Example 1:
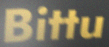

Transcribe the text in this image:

Bittu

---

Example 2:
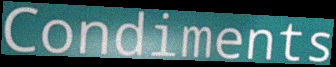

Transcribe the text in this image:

Condiments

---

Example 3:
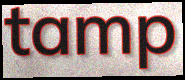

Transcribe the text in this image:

tamp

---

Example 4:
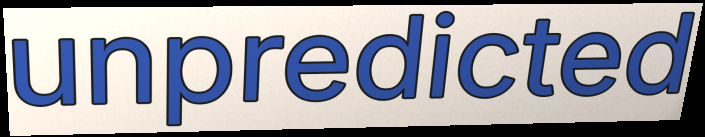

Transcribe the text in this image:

unpredicted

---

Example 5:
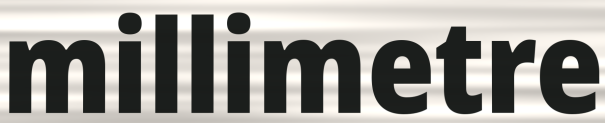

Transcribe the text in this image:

millimetre